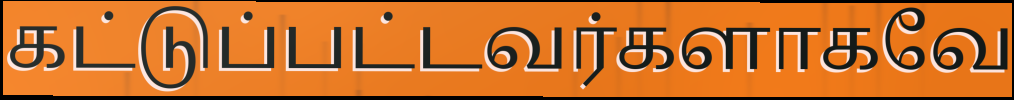
கட்டுப்பட்டவர்களாகவே